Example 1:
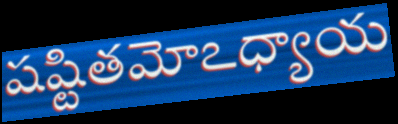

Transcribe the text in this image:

షష్టితమోఽధ్యాయ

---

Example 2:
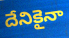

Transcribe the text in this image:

దేనికైనా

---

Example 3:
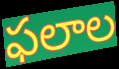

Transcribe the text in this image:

ఫలాల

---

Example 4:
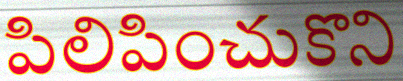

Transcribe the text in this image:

పిలిపించుకొని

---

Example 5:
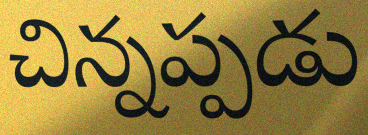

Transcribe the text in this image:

చిన్నప్పడు